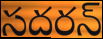
సదరన్